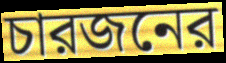
চারজনের